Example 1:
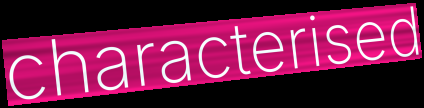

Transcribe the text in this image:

characterised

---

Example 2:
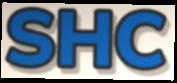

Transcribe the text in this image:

SHC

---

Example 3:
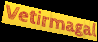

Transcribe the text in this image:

Vetirmagal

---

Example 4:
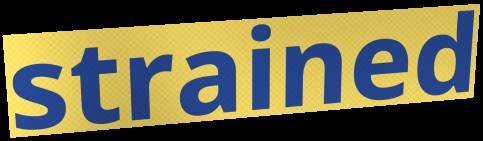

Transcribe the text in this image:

strained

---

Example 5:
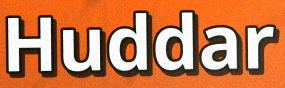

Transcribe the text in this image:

Huddar